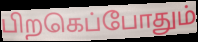
பிறகெப்போதும்